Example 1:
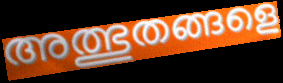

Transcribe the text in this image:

അത്ഭുതങ്ങളെ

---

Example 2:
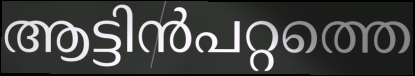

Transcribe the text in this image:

ആട്ടിൻപറ്റത്തെ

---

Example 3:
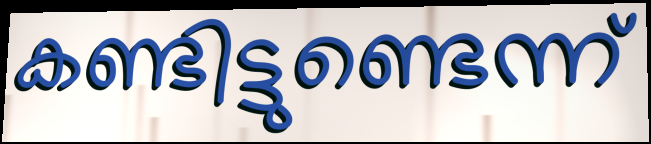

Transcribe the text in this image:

കണ്ടിട്ടുണ്ടെന്ന്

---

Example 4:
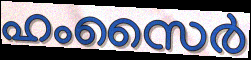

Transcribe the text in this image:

ഹംസൈർ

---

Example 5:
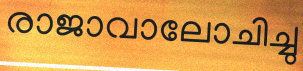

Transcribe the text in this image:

രാജാവാലോചിച്ചു